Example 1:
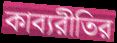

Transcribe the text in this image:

কাব্যরীতির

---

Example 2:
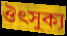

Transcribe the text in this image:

ঔৎসুক্য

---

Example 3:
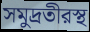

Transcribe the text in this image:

সমুদ্রতীরস্থ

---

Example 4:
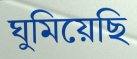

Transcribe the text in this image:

ঘুমিয়েছি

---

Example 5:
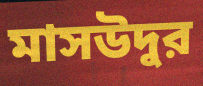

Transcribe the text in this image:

মাসউদুর